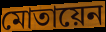
মোতায়েন